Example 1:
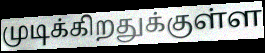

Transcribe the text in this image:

முடிக்கிறதுக்குள்ள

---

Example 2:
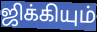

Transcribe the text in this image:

ஜிக்கியும்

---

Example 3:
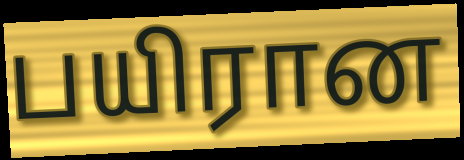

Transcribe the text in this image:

பயிரான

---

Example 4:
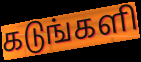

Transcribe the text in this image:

கடுங்களி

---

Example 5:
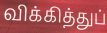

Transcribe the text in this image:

விக்கித்துப்